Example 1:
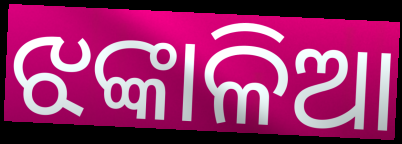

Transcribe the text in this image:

ଝଙ୍କାଳିଆ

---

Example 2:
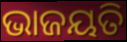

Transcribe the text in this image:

ଭାଜୟତି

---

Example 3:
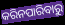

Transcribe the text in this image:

କରିନପାରିବାରୁ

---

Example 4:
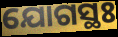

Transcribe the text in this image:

ଯୋଗସ୍ଥଃ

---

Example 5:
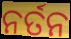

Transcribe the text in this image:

ନର୍ତନ